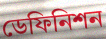
ডেফিনিশন